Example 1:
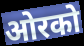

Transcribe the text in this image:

ओरको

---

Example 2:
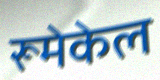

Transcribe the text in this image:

रूमेकेल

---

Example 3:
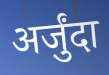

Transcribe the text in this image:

अर्जुंदा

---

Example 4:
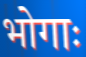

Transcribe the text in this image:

भोगाः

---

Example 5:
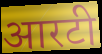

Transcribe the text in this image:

आरटी